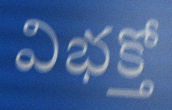
విభక్తో